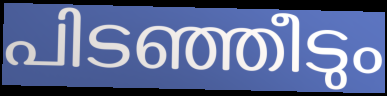
പിടഞ്ഞീടും